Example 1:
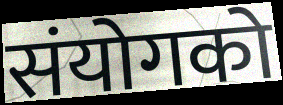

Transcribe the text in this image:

संयोगको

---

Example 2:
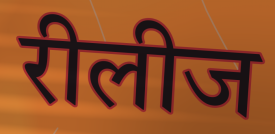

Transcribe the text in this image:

रीलीज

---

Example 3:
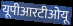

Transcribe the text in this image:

यूपीआरटीओयू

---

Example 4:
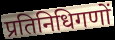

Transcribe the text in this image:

प्रतिनिधिगणों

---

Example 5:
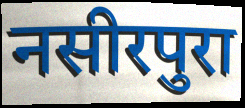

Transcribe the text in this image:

नसीरपुरा